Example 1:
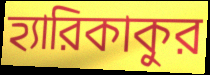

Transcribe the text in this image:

হ্যারিকাকুর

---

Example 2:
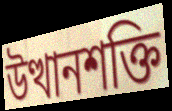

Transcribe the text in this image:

উত্থানশক্তি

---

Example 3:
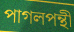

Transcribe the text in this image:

পাগলপন্থী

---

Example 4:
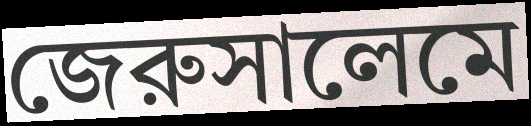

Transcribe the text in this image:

জেরুসালেমে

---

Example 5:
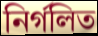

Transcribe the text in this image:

নির্গলিত